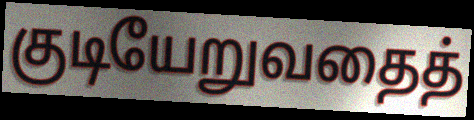
குடியேறுவதைத்